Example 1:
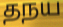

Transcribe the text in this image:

தநய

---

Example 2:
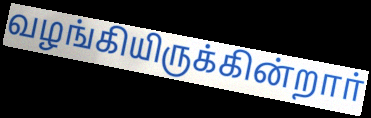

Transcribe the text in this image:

வழங்கியிருக்கின்றார்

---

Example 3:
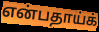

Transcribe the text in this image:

என்பதாய்க்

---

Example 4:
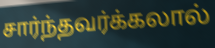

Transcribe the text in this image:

சார்ந்தவர்க்கலால்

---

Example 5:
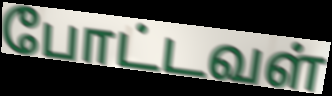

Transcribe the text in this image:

போட்டவள்